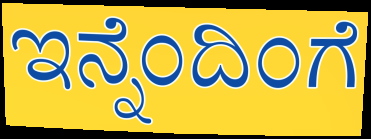
ಇನ್ನೆಂದಿಂಗೆ